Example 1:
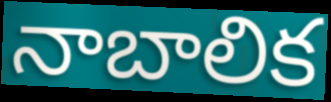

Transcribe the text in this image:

నాబాలిక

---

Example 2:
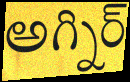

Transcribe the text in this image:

అగ్నిర్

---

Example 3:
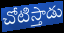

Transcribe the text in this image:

చోటిస్తాడు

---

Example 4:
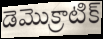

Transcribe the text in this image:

డెమొక్రాటిక్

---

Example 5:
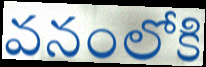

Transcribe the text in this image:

వనంలోకి